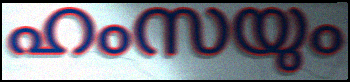
ഹംസയും